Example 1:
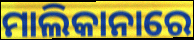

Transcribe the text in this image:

ମାଲିକାନାରେ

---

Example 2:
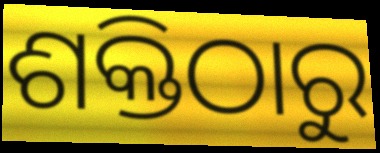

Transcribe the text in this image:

ଶକ୍ତିଠାରୁ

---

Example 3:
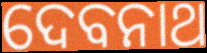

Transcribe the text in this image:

ଦେବନାଥ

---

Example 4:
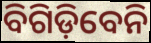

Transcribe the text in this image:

ବିଗିଡ଼ିବେନି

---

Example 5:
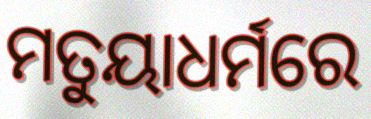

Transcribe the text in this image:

ମତୁୟାଧର୍ମରେ